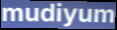
mudiyum